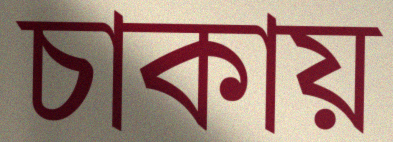
চাকায়